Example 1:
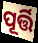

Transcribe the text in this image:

ପୂର୍ତ୍ତି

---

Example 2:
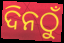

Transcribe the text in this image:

ଦିନଠୁଁ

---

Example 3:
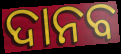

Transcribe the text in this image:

ଦାନବ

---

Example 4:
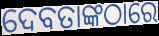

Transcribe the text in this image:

ଦେବତାଙ୍କଠାରେ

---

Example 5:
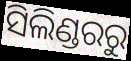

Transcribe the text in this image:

ସିଲିଣ୍ଡରରୁ